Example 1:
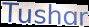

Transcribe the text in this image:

Tushar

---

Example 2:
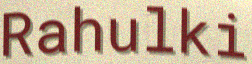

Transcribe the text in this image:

Rahulki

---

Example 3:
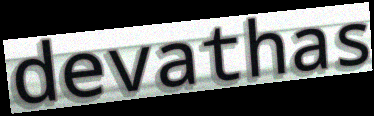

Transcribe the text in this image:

devathas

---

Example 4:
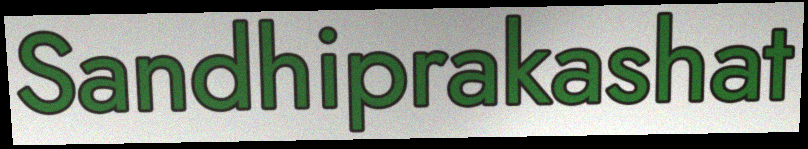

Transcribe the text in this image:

Sandhiprakashat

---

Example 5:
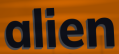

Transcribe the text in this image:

alien